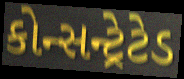
કોન્સન્ટ્રેટેડ